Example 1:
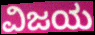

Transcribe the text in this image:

ವಿಜಯ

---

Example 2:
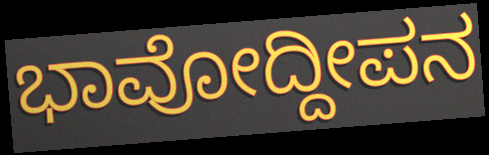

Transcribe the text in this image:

ಭಾವೋದ್ದೀಪನ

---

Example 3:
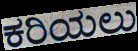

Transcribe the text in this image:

ಕರಿಯಲು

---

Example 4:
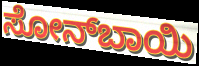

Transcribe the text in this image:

ಸೋನ್‍ಬಾಯಿ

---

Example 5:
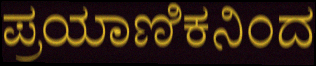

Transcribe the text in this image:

ಪ್ರಯಾಣಿಕನಿಂದ